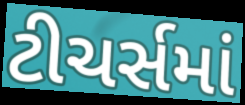
ટીચર્સમાં